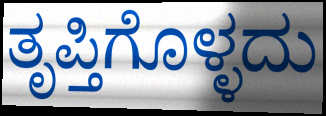
ತೃಪ್ತಿಗೊಳ್ಳದು